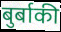
बुर्बाकी